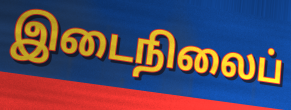
இடைநிலைப்